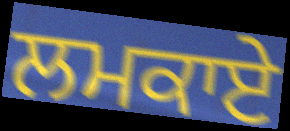
ਲਮਕਾਏ